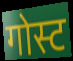
गोस्ट